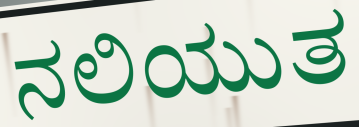
ನಲಿಯುತ